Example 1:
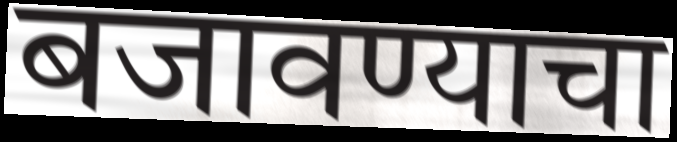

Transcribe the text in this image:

बजावण्याचा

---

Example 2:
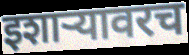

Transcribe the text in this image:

इशाऱ्यावरच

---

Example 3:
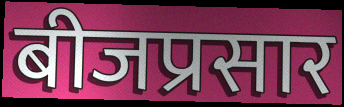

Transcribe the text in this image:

बीजप्रसार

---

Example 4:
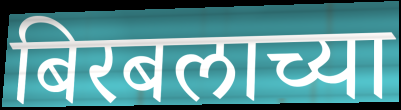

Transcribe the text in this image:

बिरबलाच्या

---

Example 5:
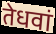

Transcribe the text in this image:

तेधवां